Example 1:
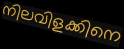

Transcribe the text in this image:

നിലവിളക്കിനെ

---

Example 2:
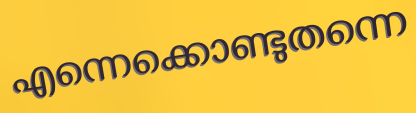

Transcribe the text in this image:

എന്നെക്കൊണ്ടുതന്നെ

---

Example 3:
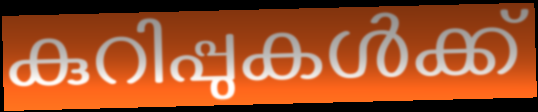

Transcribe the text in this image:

കുറിപ്പുകൾക്ക്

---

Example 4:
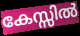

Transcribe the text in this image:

കേസ്സിൽ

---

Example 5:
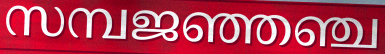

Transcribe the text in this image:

സമ്പജഞ്ഞഞ്ച